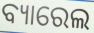
ବ୍ୟାରେଲ